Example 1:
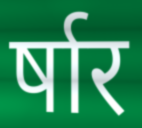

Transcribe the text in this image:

र्षार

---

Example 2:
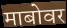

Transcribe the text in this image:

माबोवर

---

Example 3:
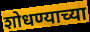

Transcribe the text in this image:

शोधण्याच्या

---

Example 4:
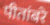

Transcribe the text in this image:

पीतांबरे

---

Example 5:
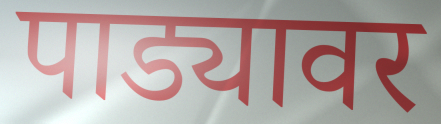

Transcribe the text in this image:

पाड्यावर